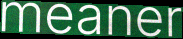
meaner